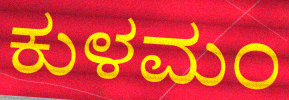
ಕುಳಮಂ